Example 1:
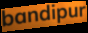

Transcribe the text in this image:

bandipur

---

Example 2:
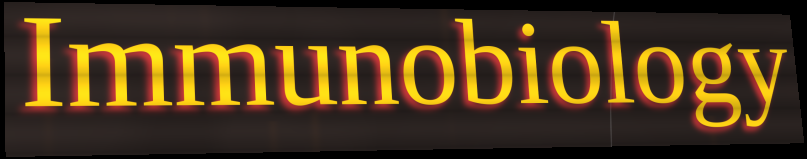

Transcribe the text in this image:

Immunobiology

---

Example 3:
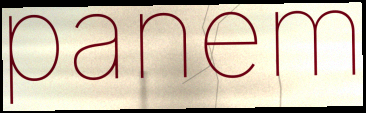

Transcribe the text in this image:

panem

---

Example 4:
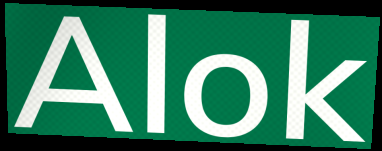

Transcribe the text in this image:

Alok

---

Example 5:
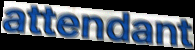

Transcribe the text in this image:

attendant